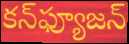
కన్‌ఫ్యూజన్